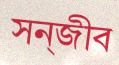
সন্জীব